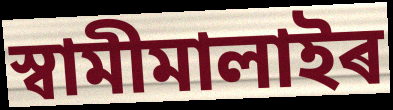
স্বামীমালাইৰ